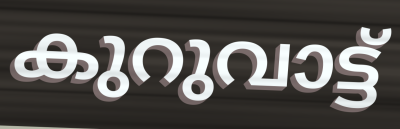
കുറുവാട്ട്